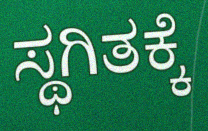
ಸ್ಥಗಿತಕ್ಕೆ